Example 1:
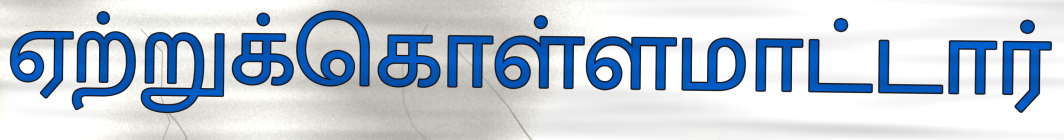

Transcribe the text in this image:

ஏற்றுக்கொள்ளமாட்டார்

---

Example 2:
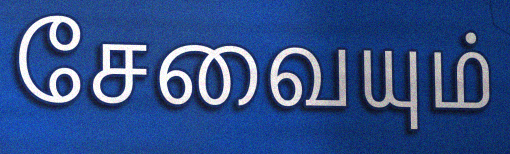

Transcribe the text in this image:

சேவையும்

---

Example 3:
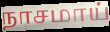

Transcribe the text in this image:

நாசமாய்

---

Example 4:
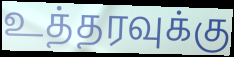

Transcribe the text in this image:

உத்தரவுக்கு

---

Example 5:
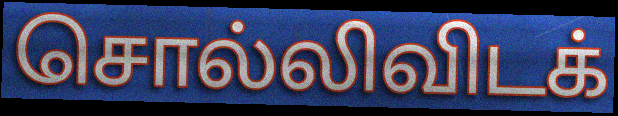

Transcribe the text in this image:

சொல்லிவிடக்